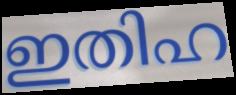
ഇതിഹ